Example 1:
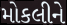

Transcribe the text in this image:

મોકલીને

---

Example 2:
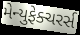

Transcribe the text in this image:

મેન્યુફેક્ચરર્સ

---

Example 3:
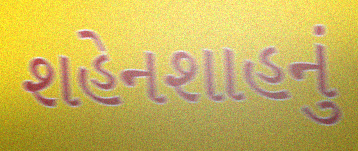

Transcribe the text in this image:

શહેનશાહનું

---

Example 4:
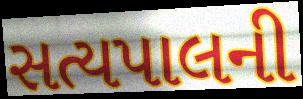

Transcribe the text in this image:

સત્યપાલની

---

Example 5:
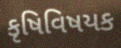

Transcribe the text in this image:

કૃષિવિષયક